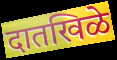
दातखिळे